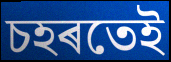
চহৰতেই